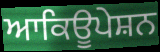
ਆਕਿਊਪੇਸ਼ਨ